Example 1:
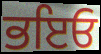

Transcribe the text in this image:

ਭਇਓ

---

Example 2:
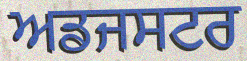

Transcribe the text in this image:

ਅਡਜਸਟਰ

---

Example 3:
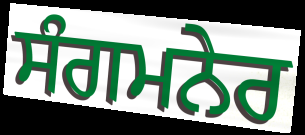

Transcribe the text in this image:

ਸੰਗਮਨੇਰ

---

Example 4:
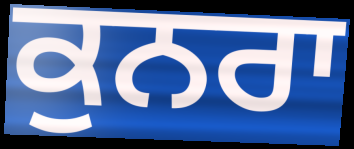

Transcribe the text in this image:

ਕੁਨਰਾ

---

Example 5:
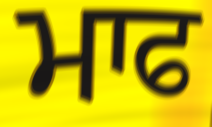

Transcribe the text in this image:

ਮਾਫ